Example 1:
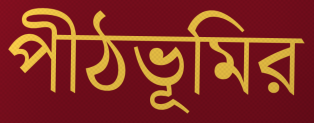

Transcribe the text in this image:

পীঠভূমির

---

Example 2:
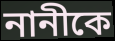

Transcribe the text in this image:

নানীকে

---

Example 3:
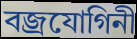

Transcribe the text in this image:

বজ্রযোগিনী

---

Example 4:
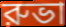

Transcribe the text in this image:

রুভা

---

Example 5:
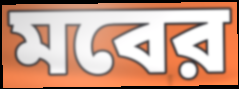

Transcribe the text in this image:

মবের